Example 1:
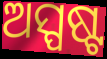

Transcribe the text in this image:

ଅସ୍ପଷ୍ଟ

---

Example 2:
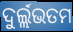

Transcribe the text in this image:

ଦୁର୍ଲ୍ଲଭତମ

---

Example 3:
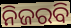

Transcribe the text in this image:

ନିଜରବି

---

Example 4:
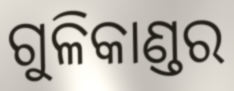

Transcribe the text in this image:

ଗୁଳିକାଣ୍ଡର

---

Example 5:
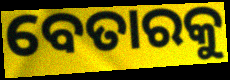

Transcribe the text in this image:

ବେତାରକୁ